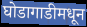
घोडागाडीमधून